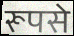
रूपसे